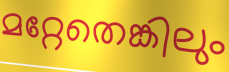
മറ്റേതെങ്കിലും